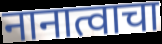
नानात्वाचा